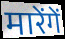
मारेंगें